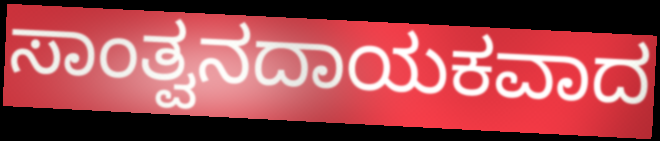
ಸಾಂತ್ವನದಾಯಕವಾದ